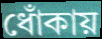
ধোঁকায়